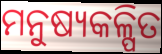
ମନୁଷ୍ୟକଳ୍ପିତ